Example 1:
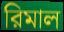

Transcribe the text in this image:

রিমাল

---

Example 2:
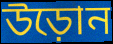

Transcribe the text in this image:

উড়োন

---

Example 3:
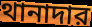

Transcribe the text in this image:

থানাদার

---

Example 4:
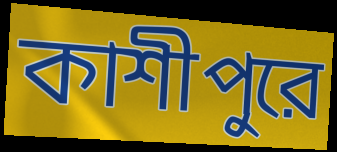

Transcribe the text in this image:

কাশীপুরে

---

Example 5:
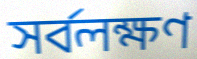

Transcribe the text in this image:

সর্বলক্ষণ